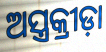
ଅସ୍ତ୍ରକ୍ରୀଡ଼ା